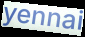
yennai